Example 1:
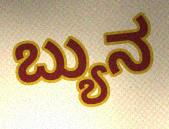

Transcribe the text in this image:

ಬ್ಯುನ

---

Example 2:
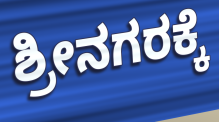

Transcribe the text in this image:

ಶ್ರೀನಗರಕ್ಕೆ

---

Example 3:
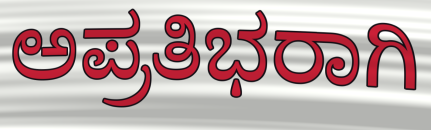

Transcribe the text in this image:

ಅಪ್ರತಿಭರಾಗಿ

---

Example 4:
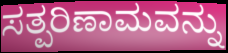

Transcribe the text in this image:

ಸತ್ಪರಿಣಾಮವನ್ನು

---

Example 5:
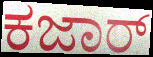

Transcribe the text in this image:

ಕಜಾರ್